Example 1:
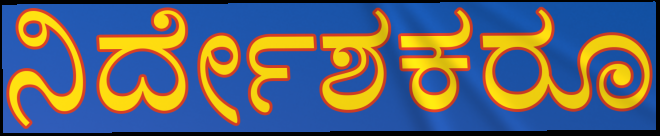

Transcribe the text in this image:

ನಿರ್ದೇಶಕರೂ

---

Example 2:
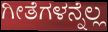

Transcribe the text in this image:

ಗೀತೆಗಳನ್ನೆಲ್ಲ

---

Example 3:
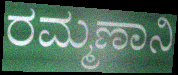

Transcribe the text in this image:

ರಮ್ಮಣಾನಿ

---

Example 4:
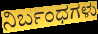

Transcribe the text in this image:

ನಿರ್ಬಂಧಗಳು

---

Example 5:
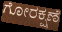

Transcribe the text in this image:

ಗೋರಕ್ಷಣೆ